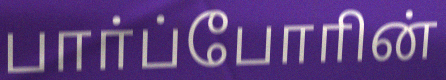
பார்ப்போரின்